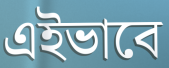
এইভাবে